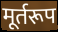
मूर्तरूप